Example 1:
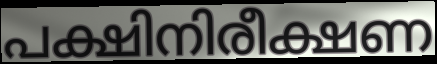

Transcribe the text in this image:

പക്ഷിനിരീക്ഷണ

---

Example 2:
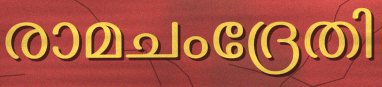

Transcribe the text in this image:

രാമചംദ്രേതി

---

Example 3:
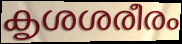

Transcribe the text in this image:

കൃശശരീരം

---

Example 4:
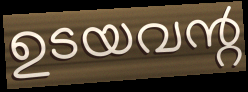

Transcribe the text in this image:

ഉടയവന്റ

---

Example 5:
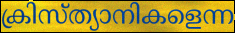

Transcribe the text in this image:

ക്രിസ്ത്യാനികളെന്ന